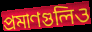
প্রমাণগুলিও